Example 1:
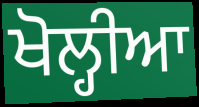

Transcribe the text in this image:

ਖੋਲ੍ਹੀਆ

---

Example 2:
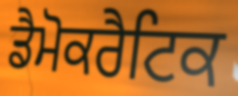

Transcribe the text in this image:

ਡੈਮੋਕਰੈਟਿਕ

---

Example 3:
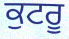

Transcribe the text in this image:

ਕੁਟਰੂ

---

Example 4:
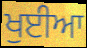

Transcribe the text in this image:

ਖੁਈਆ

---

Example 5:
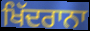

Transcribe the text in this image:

ਖਿੱਦਰਾਨਾ